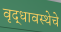
वृद्धावस्थेचे